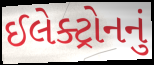
ઈલેક્ટ્રોનનું